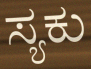
ಸ್ಯಕು